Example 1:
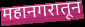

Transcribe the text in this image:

महानगरातून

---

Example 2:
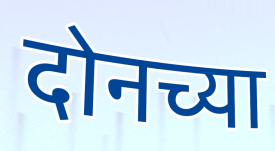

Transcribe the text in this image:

दोनच्या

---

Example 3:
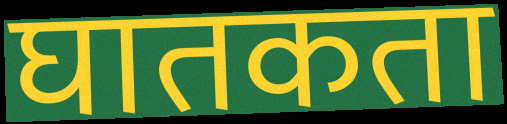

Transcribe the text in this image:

घातकता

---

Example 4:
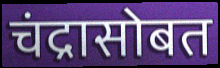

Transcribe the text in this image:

चंद्रासोबत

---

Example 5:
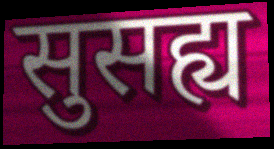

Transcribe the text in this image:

सुसह्य